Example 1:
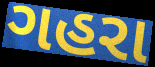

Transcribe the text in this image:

ગહરા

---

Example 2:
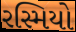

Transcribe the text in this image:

રસ્મિયો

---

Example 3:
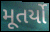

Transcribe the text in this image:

મૂતર્યો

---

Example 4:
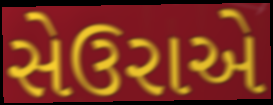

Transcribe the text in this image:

સેઉરાએ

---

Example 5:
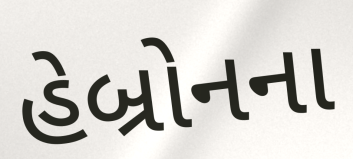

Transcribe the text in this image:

હેબ્રોનના